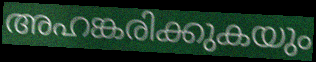
അഹങ്കരിക്കുകയും